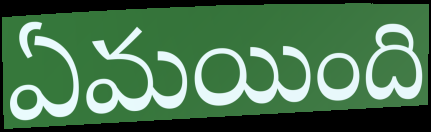
ఏమయింది